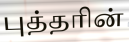
புத்தரின்